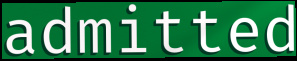
admitted